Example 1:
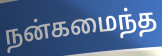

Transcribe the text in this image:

நன்கமைந்த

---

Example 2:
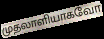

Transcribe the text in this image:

முதலாளியாகவோ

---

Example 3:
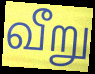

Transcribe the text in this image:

வீறு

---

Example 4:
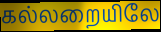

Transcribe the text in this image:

கல்லறையிலே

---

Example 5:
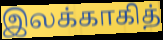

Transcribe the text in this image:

இலக்காகித்